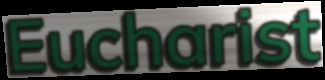
Eucharist